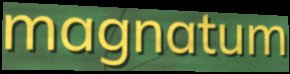
magnatum